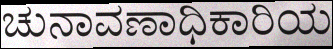
ಚುನಾವಣಾಧಿಕಾರಿಯ